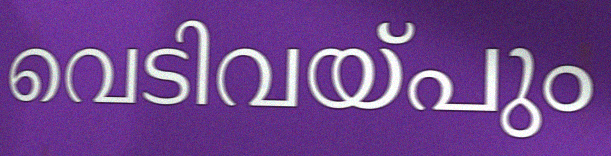
വെടിവയ്പും